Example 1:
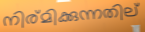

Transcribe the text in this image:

നിര്മിക്കുന്നതില്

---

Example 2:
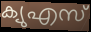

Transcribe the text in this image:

ക്യുഎസ്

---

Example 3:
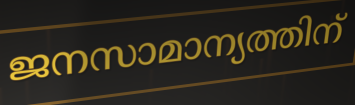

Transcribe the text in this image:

ജനസാമാന്യത്തിന്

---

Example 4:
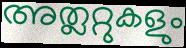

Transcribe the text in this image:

അത്ലറ്റുകളും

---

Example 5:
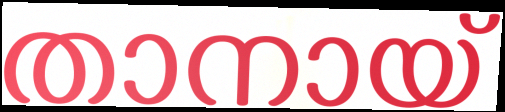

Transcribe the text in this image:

താനായ്